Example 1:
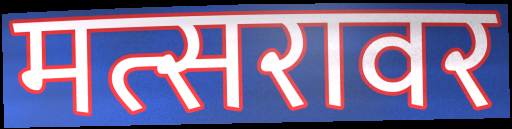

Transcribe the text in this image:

मत्सरावर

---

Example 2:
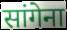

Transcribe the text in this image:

सांगेना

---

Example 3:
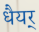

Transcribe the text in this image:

धैयर्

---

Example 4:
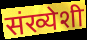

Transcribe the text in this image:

संख्येशी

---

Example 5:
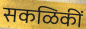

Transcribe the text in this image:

सकळिकीं